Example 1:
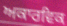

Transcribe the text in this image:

ਅਕਾਰਵਿਕ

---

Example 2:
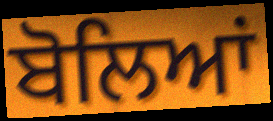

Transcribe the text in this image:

ਬੋਲਿਆਂ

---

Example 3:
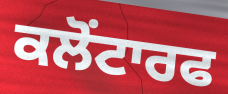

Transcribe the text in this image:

ਕਲੋਂਟਾਰਫ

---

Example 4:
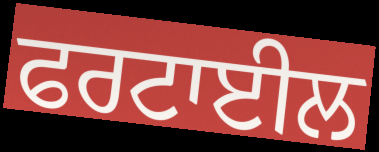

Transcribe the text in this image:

ਫਰਟਾਈਲ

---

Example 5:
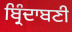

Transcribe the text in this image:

ਬ੍ਰਿੰਦਾਬਣੀ